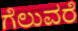
ಗೆಲುವರೆ